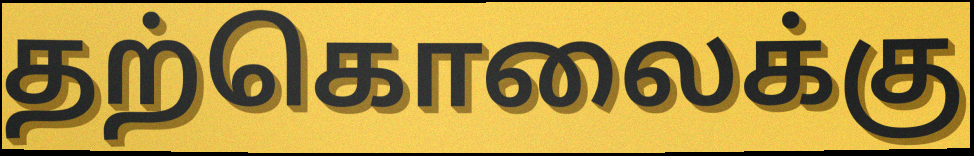
தற்கொலைக்கு